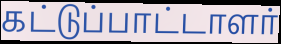
கட்டுப்பாட்டாளர்